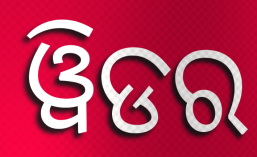
ୱିଡର